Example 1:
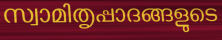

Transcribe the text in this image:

സ്വാമിതൃപ്പാദങ്ങളുടെ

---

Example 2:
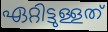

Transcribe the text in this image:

ഏറ്റിട്ടുള്ളത്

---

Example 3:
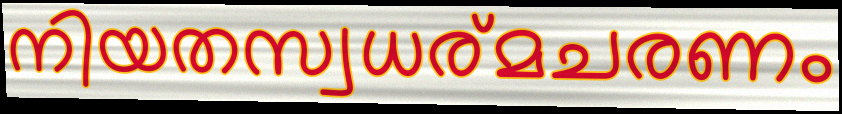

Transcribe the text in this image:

നിയതസ്വധര്മചരണം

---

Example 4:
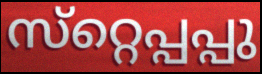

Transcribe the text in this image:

സ്‌റ്റെപ്പപ്പു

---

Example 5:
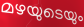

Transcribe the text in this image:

മഴയുടെയും